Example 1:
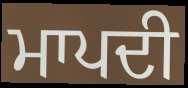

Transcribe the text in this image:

ਮਾਪਦੀ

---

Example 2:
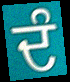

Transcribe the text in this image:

ਦੰ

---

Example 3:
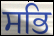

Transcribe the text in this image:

ਸਭਿ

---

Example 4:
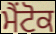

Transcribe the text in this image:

ਮੈਂਟੋਕ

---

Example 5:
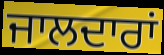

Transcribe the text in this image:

ਜਾਲਦਾਰਾਂ